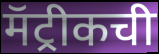
मॅट्रीकची